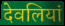
देवलियां